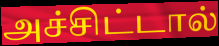
அச்சிட்டால்